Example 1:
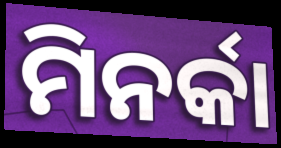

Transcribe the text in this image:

ମିନର୍କା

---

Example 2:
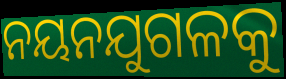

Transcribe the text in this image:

ନୟନଯୁଗଳକୁ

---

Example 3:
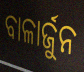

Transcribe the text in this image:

ବାଳାର୍ଜୁନ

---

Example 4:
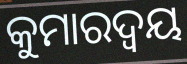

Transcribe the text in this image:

କୁମାରଦ୍ଵୟ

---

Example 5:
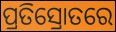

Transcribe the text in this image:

ପ୍ରତିସ୍ରୋତରେ